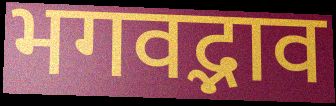
भगवद्भाव